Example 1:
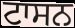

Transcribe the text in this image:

ਟਾਸਨ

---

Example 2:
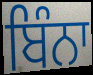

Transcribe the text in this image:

ਬਿੰਨਾ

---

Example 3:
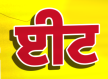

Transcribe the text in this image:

ਈਟ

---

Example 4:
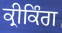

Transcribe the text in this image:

ਕ੍ਰੀਕਿੰਗ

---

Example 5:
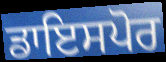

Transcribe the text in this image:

ਡਾਇਸਪੋਰ